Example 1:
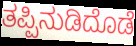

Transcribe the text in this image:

ತಪ್ಪಿನುಡಿದೊಡೆ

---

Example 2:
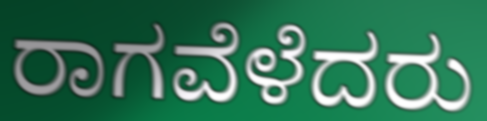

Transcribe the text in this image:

ರಾಗವೆಳೆದರು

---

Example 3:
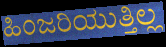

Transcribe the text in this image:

ಹಿಂಜರಿಯುತ್ತಿಲ್ಲ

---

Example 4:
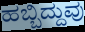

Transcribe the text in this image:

ಹಬ್ಬಿದ್ದುವು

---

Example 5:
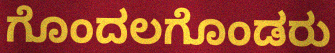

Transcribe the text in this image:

ಗೊಂದಲಗೊಂಡರು